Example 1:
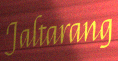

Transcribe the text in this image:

Jaltarang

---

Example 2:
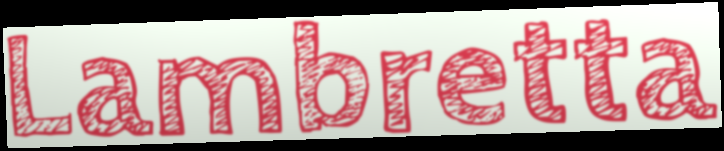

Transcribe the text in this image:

Lambretta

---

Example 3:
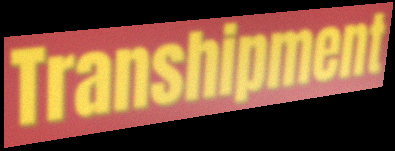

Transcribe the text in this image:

Transhipment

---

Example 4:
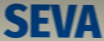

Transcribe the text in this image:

SEVA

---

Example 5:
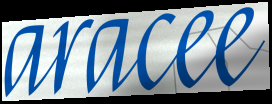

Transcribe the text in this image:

aracee